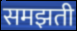
समझती